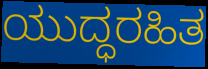
ಯುದ್ಧರಹಿತ